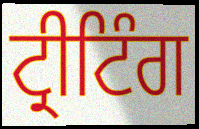
ਟ੍ਰੀਟਿੰਗ